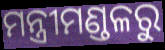
ମନ୍ତ୍ରୀମଣ୍ଡଳରୁ